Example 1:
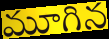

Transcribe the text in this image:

మూగిన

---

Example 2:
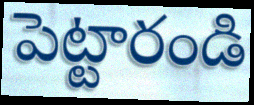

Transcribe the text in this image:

పెట్టారండి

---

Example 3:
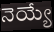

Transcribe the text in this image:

నెయ్యే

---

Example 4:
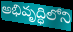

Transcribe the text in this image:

అభివృద్ధిలోని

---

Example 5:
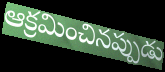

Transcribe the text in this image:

ఆక్రమించినప్పుడు